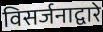
विसर्जनाद्वारे